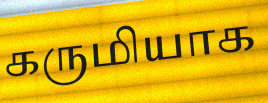
கருமியாக